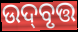
ଉଦ୍‌ବୃତ୍ତ